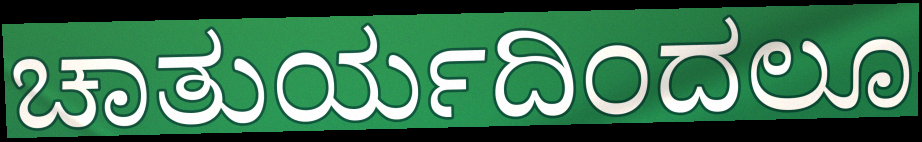
ಚಾತುರ್ಯದಿಂದಲೂ